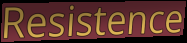
Resistence